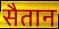
सैतान